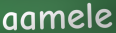
aamele